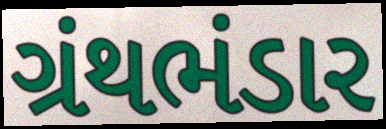
ગ્રંથભંડાર